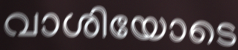
വാശിയോടെ